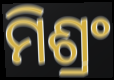
ମିଶ୍ରଂ